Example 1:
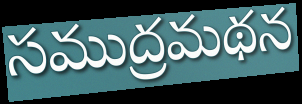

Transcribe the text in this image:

సముద్రమథన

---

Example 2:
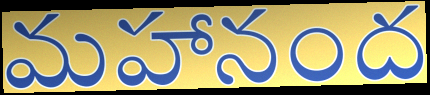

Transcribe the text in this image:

మహానంద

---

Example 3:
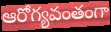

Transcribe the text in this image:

ఆరోగ్యవంతంగా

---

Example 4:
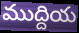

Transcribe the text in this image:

ముద్దియ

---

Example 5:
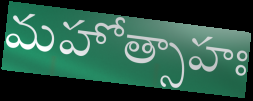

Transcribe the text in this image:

మహోత్సాహః